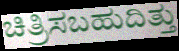
ಚಿತ್ರಿಸಬಹುದಿತ್ತು